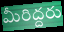
మీరిద్దరు